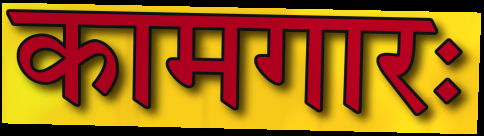
कामगारः